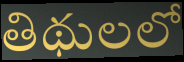
తిథులలో